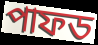
পাফড